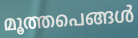
മൂത്തപെങ്ങൾ